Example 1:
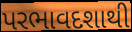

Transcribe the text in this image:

પરભાવદશાથી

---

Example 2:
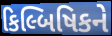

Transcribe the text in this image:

કિલ્બિષિકને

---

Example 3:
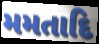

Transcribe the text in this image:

મમતાદિ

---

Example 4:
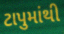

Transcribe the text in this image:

ટાપુમાંથી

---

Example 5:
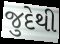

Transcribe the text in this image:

જુદેથી